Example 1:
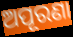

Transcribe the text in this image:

ଅପୂରଣା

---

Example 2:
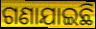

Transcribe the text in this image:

ଗଣାଯାଇଛି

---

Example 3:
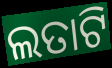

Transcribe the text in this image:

ଲତାଟି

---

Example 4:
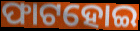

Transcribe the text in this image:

ଫାଟହୋଇ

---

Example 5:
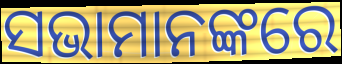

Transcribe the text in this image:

ସଭାମାନଙ୍କରେ